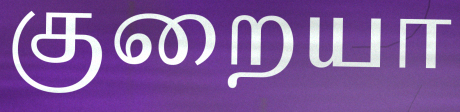
குறையா